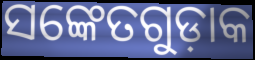
ସଙ୍କେତଗୁଡ଼ାକ